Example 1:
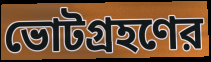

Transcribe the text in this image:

ভোটগ্রহণের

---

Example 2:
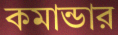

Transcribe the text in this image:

কমান্ডার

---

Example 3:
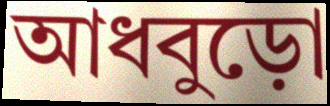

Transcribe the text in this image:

আধবুড়ো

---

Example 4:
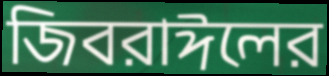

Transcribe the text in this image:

জিবরাঈলের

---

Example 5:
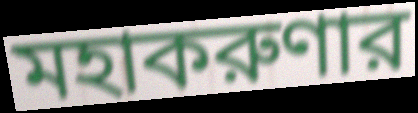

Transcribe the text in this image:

মহাকরুণার